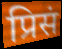
प्रिसं